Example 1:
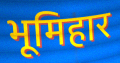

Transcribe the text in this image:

भूमिहार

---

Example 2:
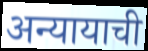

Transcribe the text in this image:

अन्यायाची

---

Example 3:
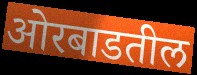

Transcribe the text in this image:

ओरबाडतील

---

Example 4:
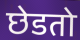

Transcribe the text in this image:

छेडतो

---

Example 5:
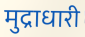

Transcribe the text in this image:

मुद्राधारी